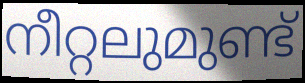
നീറ്റലുമുണ്ട്